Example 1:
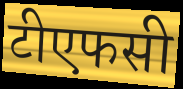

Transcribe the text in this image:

टीएफसी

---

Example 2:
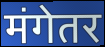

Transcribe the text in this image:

मंगेतर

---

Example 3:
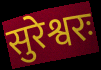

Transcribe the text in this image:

सुरेश्वरः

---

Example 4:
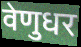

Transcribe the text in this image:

वेणुधर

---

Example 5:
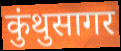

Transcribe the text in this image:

कुंथुसागर